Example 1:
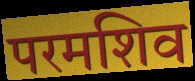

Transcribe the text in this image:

परमशिव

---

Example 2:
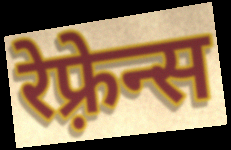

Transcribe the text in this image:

रेफ़्रेन्स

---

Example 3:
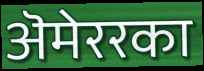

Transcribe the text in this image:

ऄमेररका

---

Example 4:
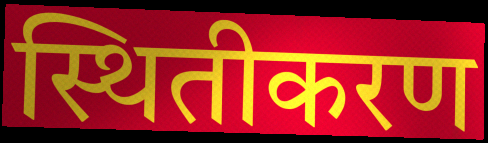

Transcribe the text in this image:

स्थितीकरण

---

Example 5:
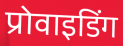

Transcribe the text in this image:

प्रोवाइडिंग